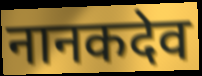
नानकदेव